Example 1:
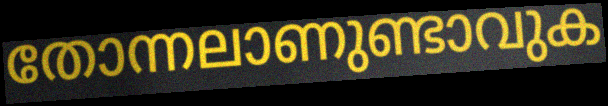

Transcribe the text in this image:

തോന്നലാണുണ്ടാവുക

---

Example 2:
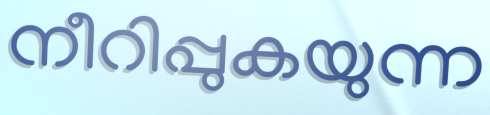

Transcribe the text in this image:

നീറിപ്പുകയുന്ന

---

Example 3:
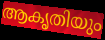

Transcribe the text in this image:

ആകൃതിയും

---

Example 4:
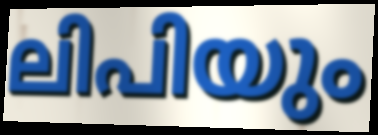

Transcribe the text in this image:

ലിപിയും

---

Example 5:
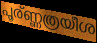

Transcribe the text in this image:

പൂര്ണ്ണത്രയീശ